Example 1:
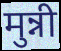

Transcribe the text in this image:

मुन्नी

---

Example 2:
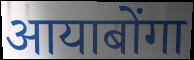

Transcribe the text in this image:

आयाबोंगा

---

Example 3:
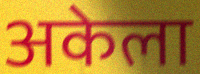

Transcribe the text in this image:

अकेला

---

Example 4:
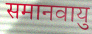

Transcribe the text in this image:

समानवायु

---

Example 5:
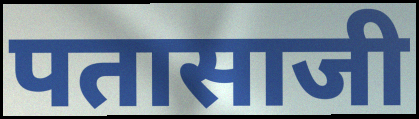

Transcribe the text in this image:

पतासाजी